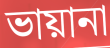
ভায়ানা